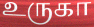
உருகா